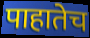
पाहातेच